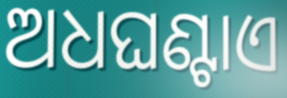
ଅଧଘଣ୍ଟାଏ